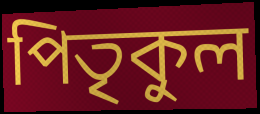
পিতৃকুল